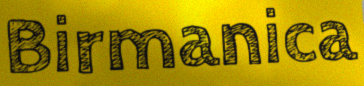
Birmanica